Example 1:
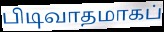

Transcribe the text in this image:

பிடிவாதமாகப்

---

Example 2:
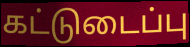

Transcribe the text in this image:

கட்டுடைப்பு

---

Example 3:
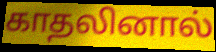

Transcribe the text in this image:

காதலினால்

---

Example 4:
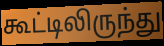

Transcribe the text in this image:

கூட்டிலிருந்து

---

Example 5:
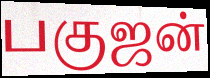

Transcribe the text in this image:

பகுஜன்